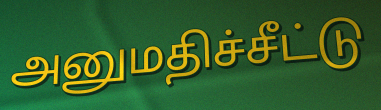
அனுமதிச்சீட்டு